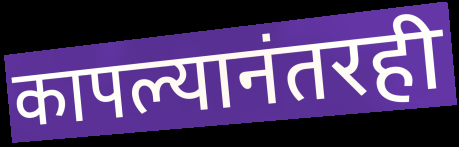
कापल्यानंतरही